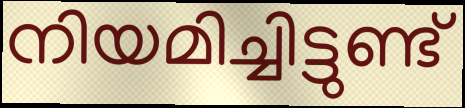
നിയമിച്ചിട്ടുണ്ട്